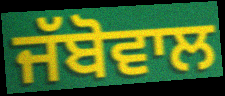
ਜੱਬੋਵਾਲ